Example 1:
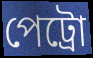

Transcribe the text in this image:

পেট্রো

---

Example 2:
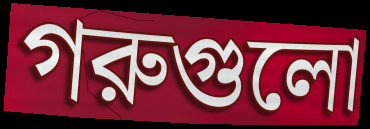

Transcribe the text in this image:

গরুগুলো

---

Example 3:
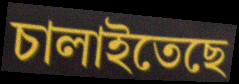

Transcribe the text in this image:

চালাইতেছে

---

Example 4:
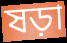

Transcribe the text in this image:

ষড়া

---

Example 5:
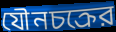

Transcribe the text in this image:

যৌনচক্রের